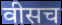
वीसच